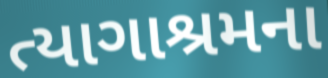
ત્યાગાશ્રમના